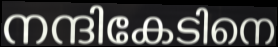
നന്ദികേടിനെ